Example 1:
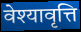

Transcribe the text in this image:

वेश्यावृत्ति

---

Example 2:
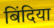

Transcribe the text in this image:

बिंदिया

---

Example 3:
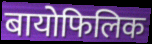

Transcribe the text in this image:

बायोफिलिक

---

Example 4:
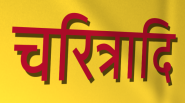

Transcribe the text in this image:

चरित्रादि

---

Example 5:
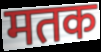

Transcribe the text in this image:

मतक